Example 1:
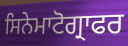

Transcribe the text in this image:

ਸਿਨੇਮਾਟੋਗ੍ਰਾਫਰ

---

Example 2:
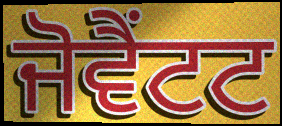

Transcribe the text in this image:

ਜੋਵੈਂਟਟ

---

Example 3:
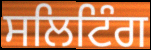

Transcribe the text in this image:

ਸਲਿਟਿੰਗ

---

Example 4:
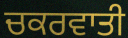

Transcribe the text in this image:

ਚਕਰਵਾਤੀ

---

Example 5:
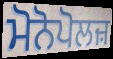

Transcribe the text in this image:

ਮੋਨੋਪੋਲਜ਼